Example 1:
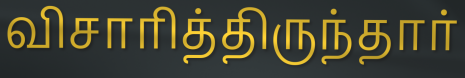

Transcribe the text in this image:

விசாரித்திருந்தார்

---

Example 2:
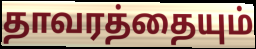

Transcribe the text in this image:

தாவரத்தையும்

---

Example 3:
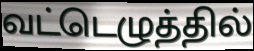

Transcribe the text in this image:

வட்டெழுத்தில்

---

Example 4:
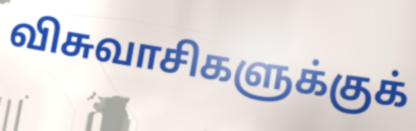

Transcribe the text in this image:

விசுவாசிகளுக்குக்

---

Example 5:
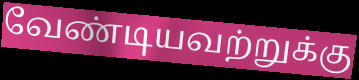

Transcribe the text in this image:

வேண்டியவற்றுக்கு